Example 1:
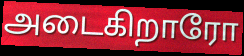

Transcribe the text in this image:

அடைகிறாரோ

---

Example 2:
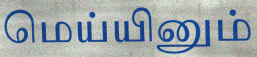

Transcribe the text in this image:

மெய்யினும்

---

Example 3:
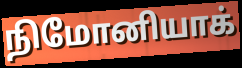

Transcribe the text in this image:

நிமோனியாக்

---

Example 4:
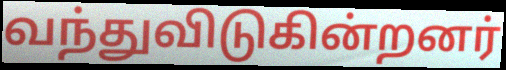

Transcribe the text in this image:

வந்துவிடுகின்றனர்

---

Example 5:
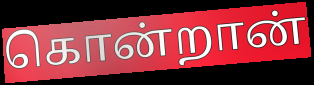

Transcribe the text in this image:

கொன்றான்